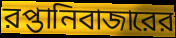
রপ্তানিবাজারের